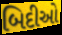
બિદીઓ